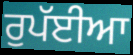
ਰੁਪੱਈਆ